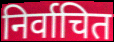
निर्वाचित